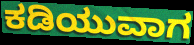
ಕಡಿಯುವಾಗ